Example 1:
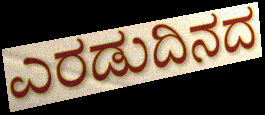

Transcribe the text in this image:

ಎರಡುದಿನದ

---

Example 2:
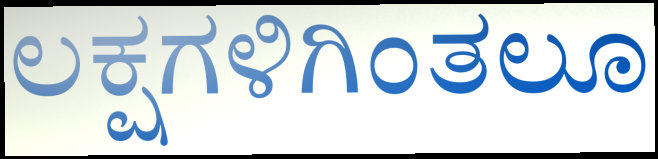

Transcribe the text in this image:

ಲಕ್ಷಗಳಿಗಿಂತಲೂ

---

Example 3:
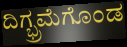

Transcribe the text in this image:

ದಿಗ್ಭ್ರಮೆಗೊಂಡ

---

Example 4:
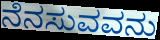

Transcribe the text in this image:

ನೆನಸುವವನು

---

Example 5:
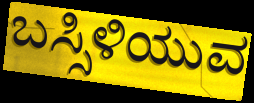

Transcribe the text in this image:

ಬಸ್ಸಿಳಿಯುವ